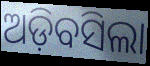
ଅଡ଼ିବସିଲା